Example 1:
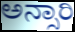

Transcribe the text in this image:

ಅನ್ಸಾರಿ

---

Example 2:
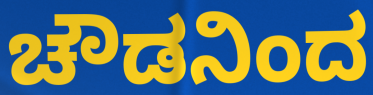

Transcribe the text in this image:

ಚೌಡನಿಂದ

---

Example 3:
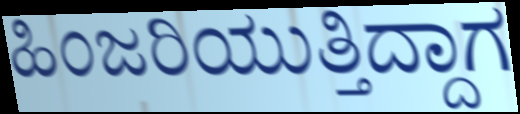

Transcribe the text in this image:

ಹಿಂಜರಿಯುತ್ತಿದ್ದಾಗ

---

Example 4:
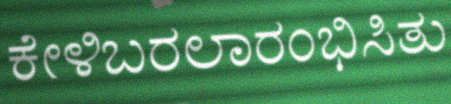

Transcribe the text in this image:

ಕೇಳಿಬರಲಾರಂಭಿಸಿತು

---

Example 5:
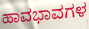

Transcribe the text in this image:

ಹಾವಭಾವಗಳ